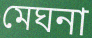
মেঘনা